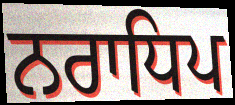
ਨਰਾਧਿਪ